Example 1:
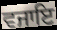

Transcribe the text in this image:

ਵਜਾਇ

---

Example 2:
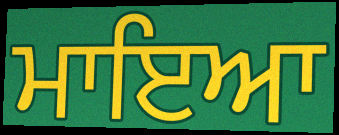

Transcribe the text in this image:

ਮਾਇਆ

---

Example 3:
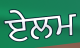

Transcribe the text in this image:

ਏਲਮ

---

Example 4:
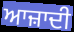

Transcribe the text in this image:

ਆਜ਼ਾਦੀ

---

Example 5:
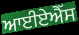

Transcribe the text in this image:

ਆਈਏਐੱਸ